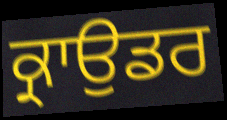
ਕ੍ਰਾਉਡਰ